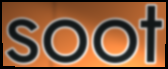
soot